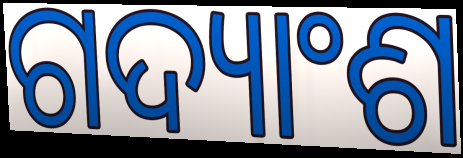
ଗଦ୍ୟାଂଶ